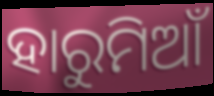
ହାରୁମିଆଁ